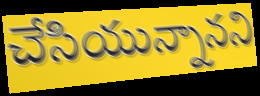
చేసియున్నానని